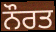
ਨੌਰਤ